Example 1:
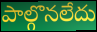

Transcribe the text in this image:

పాల్గొనలేదు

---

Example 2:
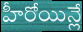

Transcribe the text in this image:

హీరోయిన్లే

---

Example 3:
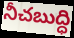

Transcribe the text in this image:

నీచబుద్ధి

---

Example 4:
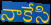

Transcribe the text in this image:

నాకేసి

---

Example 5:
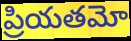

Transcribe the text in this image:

ప్రియతమో